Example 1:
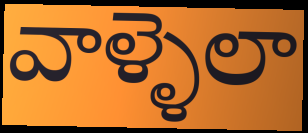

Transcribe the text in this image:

వాళ్ళెలా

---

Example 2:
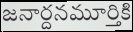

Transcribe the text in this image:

జనార్దనమూర్తికి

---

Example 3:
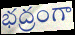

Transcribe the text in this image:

భద్రంగా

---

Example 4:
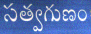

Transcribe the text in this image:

సత్వగుణం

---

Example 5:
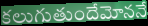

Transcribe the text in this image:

కలుగుతుందేమోననే